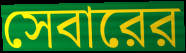
সেবারের